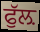
ਫੁੱਲ਼